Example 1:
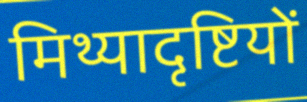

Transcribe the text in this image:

मिथ्यादृष्टियों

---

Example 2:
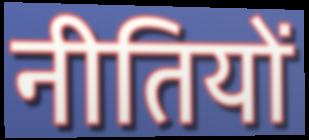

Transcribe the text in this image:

नीतियों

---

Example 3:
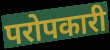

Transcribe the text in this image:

परोपकारी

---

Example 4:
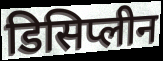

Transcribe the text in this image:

डिसिप्लीन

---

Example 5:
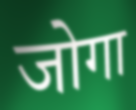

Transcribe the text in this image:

जोगा